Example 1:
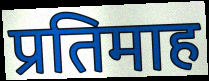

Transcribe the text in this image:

प्रतिमाह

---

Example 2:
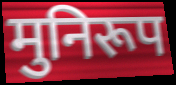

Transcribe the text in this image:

मुनिरूप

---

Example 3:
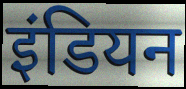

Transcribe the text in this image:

इंडियन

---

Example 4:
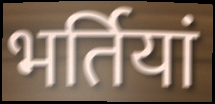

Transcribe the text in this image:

भर्तियां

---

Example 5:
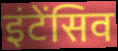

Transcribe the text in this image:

इंटेंसिव